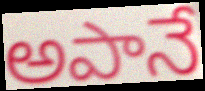
అపానే